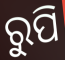
ରୁପି